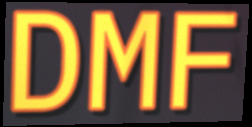
DMF